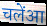
चलेंआ